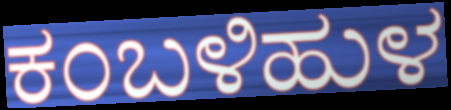
ಕಂಬಳಿಹುಳ